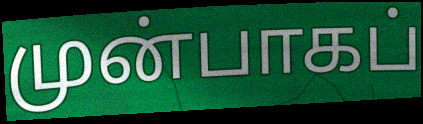
முன்பாகப்